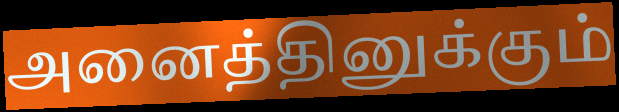
அனைத்தினுக்கும்